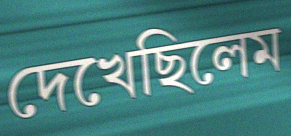
দেখেছিলেম